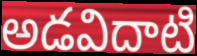
అడవిదాటి